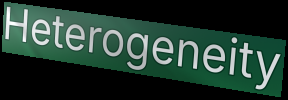
Heterogeneity